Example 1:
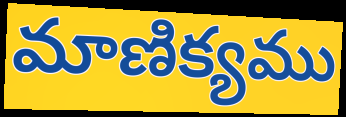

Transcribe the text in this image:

మాణిక్యము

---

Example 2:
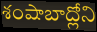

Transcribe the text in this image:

శంషాబాద్లోని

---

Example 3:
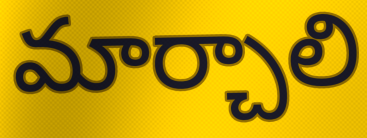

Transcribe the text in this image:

మార్చాలి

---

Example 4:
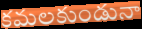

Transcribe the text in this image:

కమలకుండునా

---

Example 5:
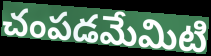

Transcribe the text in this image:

చంపడమేమిటి